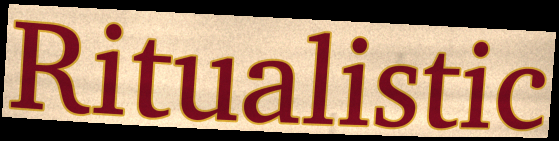
Ritualistic